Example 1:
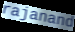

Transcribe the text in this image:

rajanand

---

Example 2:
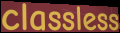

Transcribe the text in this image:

classless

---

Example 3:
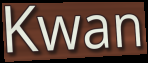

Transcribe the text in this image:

Kwan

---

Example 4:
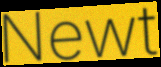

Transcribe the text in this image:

Newt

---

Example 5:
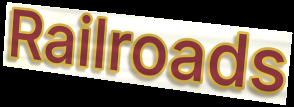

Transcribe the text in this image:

Railroads